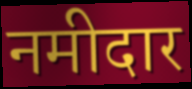
नमीदार